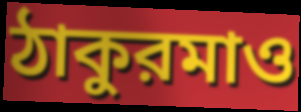
ঠাকুরমাও